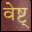
वेष्ट्